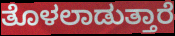
ತೊಳಲಾಡುತ್ತಾರೆ